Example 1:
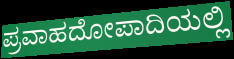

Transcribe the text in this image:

ಪ್ರವಾಹದೋಪಾದಿಯಲ್ಲಿ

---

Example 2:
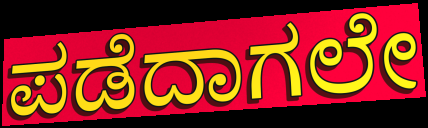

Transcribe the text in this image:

ಪಡೆದಾಗಲೇ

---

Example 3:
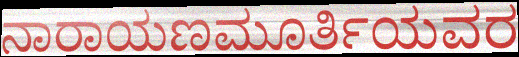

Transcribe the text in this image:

ನಾರಾಯಣಮೂರ್ತಿಯವರ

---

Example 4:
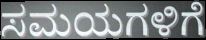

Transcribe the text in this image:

ಸಮಯಗಳಿಗೆ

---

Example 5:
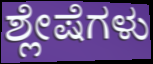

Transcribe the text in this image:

ಶ್ಲೇಷೆಗಳು